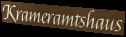
Krameramtshaus